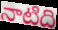
నాటిది